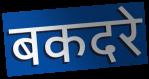
बकदरे